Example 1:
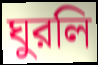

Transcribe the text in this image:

ঘুরলি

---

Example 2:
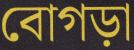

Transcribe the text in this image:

বোগড়া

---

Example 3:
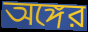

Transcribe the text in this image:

অঙ্গের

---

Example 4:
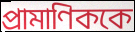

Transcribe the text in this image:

প্রামাণিককে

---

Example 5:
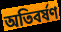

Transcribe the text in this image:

অতিবর্ষণ